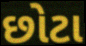
છોટા